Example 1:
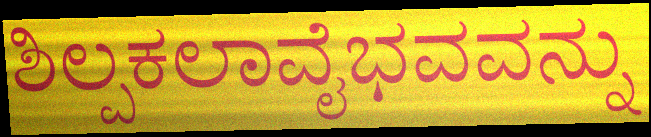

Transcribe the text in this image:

ಶಿಲ್ಪಕಲಾವೈಭವವನ್ನು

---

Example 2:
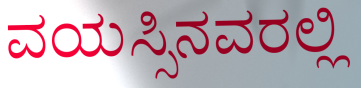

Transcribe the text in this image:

ವಯಸ್ಸಿನವರಲ್ಲಿ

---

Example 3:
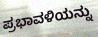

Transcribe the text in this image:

ಪ್ರಭಾವಳಿಯನ್ನು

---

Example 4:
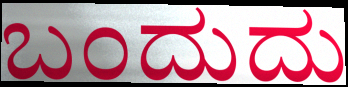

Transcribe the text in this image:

ಬಂದುದು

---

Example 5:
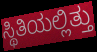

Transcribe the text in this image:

ಸ್ಥಿತಿಯಲ್ಲಿತ್ತು